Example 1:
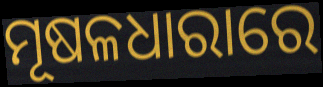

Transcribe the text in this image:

ମୂଷଳଧାରାରେ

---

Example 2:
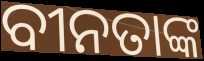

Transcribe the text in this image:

ବୀନତାଙ୍କ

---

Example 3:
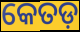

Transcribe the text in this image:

କେତଡ଼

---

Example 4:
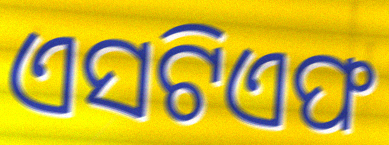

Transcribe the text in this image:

ଏସଟିଏଫ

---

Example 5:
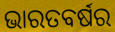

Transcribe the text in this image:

ଭାରତବର୍ଷର